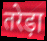
तरेड़ा